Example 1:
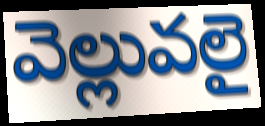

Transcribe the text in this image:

వెల్లువలై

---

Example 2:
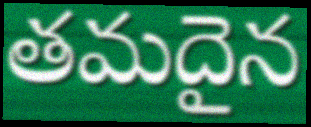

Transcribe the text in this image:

తమదైన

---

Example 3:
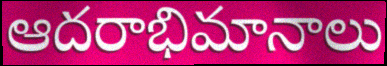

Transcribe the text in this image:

ఆదరాభిమానాలు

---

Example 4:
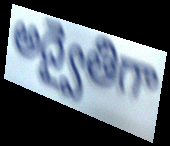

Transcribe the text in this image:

అద్వైతిగా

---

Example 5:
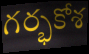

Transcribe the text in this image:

గర్భకోశ